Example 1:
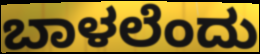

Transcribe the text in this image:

ಬಾಳಲೆಂದು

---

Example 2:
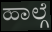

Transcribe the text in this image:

ಹಾಲ್ಗೆ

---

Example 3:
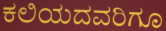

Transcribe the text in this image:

ಕಲಿಯದವರಿಗೂ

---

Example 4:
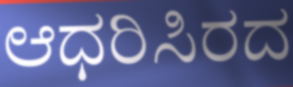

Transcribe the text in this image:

ಆಧರಿಸಿರದ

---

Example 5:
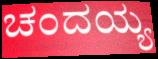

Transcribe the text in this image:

ಚಂದಯ್ಯ